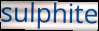
sulphite